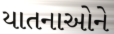
યાતનાઓને